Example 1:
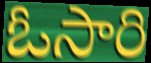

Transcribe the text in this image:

ఓసారి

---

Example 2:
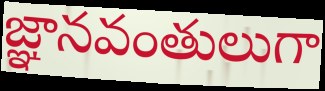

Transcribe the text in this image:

జ్ఞానవంతులుగా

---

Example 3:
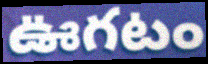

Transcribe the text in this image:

ఊగటం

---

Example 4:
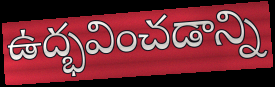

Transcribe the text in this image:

ఉద్భవించడాన్ని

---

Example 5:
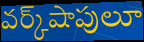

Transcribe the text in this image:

వర్క్‌షాపులూ